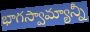
భాగస్వామ్యాన్నీ